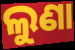
ଲୁଣା